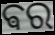
ଵର